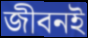
জীবনই